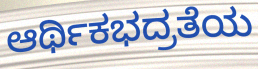
ಆರ್ಥಿಕಭದ್ರತೆಯ